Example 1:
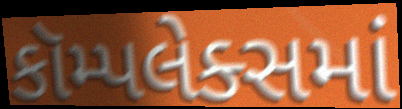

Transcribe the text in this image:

કૉમ્પલેક્સમાં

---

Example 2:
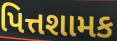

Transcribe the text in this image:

પિત્તશામક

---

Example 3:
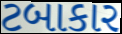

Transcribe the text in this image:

ટબાકાર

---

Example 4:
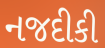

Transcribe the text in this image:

નજદીકી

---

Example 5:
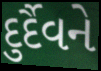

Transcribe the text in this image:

દુર્દૈવને